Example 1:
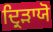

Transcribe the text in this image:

ਦ੍ਰਿੜਾਯੋ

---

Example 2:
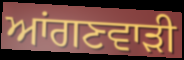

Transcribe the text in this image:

ਆਂਗਣਵਾੜੀ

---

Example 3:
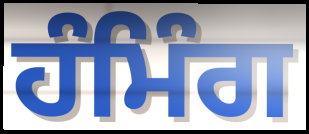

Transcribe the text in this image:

ਹੰਮਿੰਗ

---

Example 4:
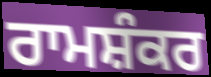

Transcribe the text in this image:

ਰਾਮਸ਼ੰਕਰ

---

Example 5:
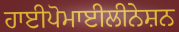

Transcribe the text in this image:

ਹਾਈਪੋਮਾਈਲੀਨੇਸ਼ਨ